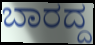
ಬಾರದ್ದ